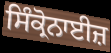
ਸਿੰਕ੍ਰੋਨਾਈਜ਼